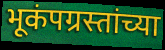
भूकंपग्रस्तांच्या